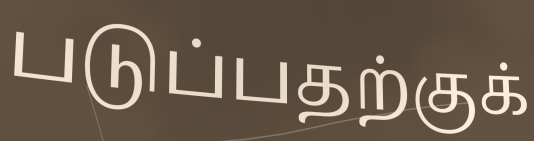
படுப்பதற்குக்